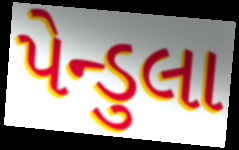
પેન્ડુલા